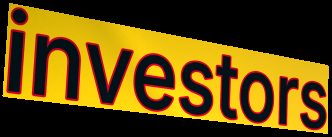
investors